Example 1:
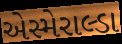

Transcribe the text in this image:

એસ્મેરાલ્ડા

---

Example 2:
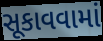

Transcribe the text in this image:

સૂકાવવામાં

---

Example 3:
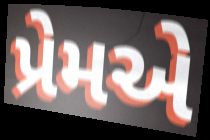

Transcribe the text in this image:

પ્રેમએ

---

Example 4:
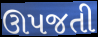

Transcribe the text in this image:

ઊપજતી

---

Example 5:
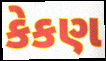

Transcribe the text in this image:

કેકણ